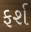
ફર્શ